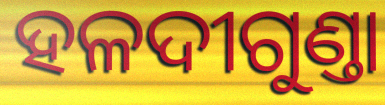
ହଳଦୀଗୁଣ୍ତା